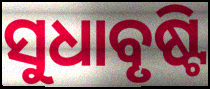
ସୁଧାବୃଷ୍ଟି